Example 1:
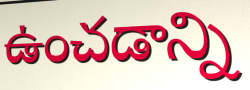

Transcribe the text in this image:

ఉంచడాన్ని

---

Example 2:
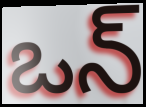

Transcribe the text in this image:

ఒన్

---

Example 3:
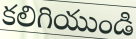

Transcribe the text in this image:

కలిగియుండి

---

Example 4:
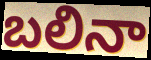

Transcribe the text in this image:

బలినా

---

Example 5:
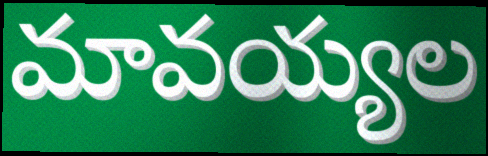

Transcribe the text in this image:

మావయ్యల